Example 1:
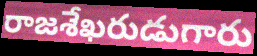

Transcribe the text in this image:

రాజశేఖరుడుగారు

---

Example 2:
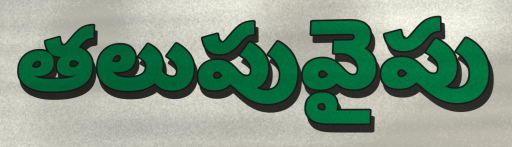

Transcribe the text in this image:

తలుపువైపు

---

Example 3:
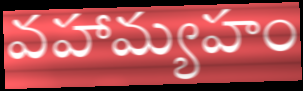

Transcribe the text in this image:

వహామ్యహం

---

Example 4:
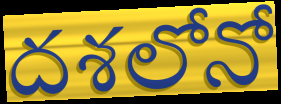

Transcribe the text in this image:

దశలోనో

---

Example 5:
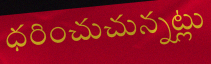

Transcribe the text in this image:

ధరించుచున్నట్లు